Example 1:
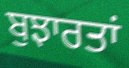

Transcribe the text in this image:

ਬੁਝਾਰਤਾਂ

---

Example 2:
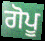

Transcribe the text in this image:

ਗੋਪੂ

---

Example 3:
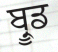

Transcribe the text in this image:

ਬ੍ਰੂਡ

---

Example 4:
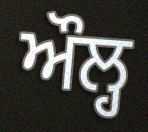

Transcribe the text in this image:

ਔਲ੍ਹ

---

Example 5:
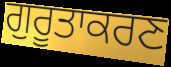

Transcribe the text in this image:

ਗੁਰੂਤਾਕਰਣ